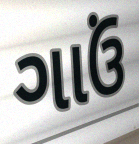
ગાઉં